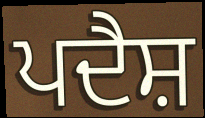
ਪਦੈਸ਼